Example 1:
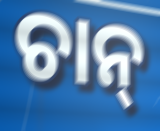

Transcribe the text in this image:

ଚାନ୍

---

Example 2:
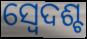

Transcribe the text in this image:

ସ୍ବେଦଶ୍ଚ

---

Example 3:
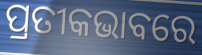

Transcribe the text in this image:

ପ୍ରତୀକଭାବରେ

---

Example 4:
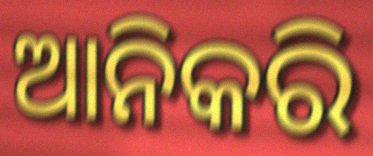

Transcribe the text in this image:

ଆନିକରି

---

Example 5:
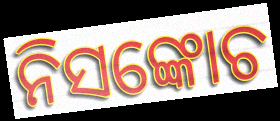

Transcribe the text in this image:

ନିସଙ୍କୋଚ